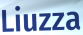
Liuzza